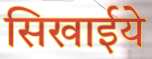
सिखाईये